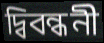
দ্বিবন্ধনী